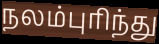
நலம்புரிந்து